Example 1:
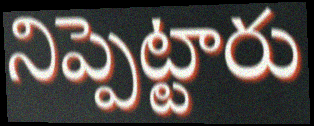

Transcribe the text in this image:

నిప్పెట్టారు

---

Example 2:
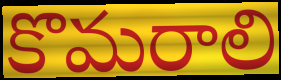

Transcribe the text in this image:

కొమరాలి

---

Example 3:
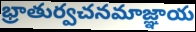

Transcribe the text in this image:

భ్రాతుర్వచనమాజ్ఞాయ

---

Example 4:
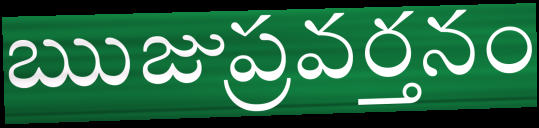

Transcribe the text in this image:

ఋజుప్రవర్తనం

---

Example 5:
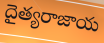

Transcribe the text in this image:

దైత్యరాజాయ